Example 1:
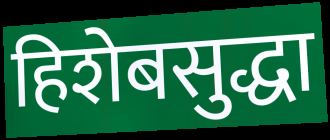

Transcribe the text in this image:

हिशेबसुद्धा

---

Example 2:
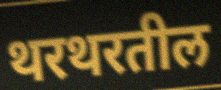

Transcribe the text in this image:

थरथरतील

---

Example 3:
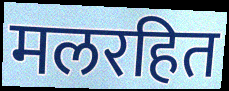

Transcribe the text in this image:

मलरहित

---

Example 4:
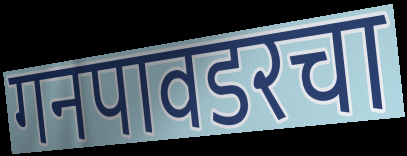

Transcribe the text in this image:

गनपावडरचा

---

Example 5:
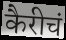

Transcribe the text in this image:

कैरीचं